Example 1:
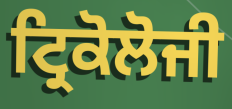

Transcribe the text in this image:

ਟ੍ਰਿਕੋਲੋਜੀ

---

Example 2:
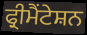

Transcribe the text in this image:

ਫ੍ਰੀਮੈਂਟੇਸ਼ਨ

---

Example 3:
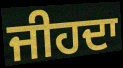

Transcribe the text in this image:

ਜੀਹਦਾ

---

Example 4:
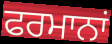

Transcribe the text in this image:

ਫਰਮਾਨਾਂ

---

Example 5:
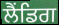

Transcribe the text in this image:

ਲੈਂਡਿਗ